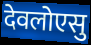
देवलोएसु